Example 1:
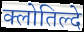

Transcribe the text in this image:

क्लोतिल्दे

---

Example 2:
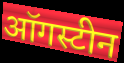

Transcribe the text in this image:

ऑगस्टीन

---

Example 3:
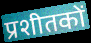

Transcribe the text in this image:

प्रशीतकों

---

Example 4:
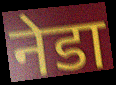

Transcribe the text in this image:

नेडा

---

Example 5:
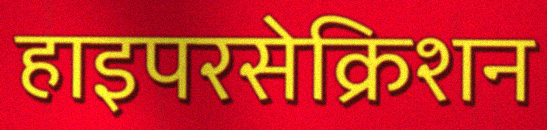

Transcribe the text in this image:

हाइपरसेक्रिशन